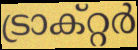
ട്രാക്റ്റർ